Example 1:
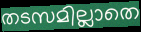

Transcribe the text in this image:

തടസമില്ലാതെ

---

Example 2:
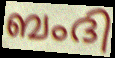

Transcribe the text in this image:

ബംദി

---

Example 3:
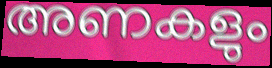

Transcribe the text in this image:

അണകളും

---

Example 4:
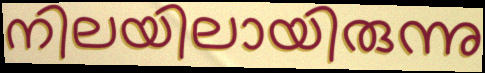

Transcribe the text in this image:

നിലയിലായിരുന്നു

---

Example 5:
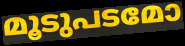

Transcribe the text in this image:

മൂടുപടമോ